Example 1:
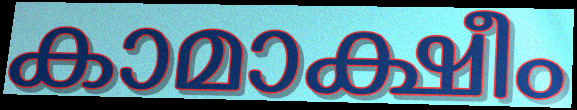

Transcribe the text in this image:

കാമാക്ഷീം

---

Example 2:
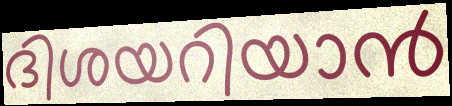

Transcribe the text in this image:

ദിശയറിയാൻ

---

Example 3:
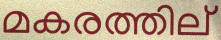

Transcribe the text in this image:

മകരത്തില്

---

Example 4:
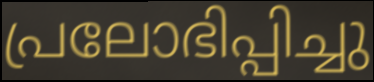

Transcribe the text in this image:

പ്രലോഭിപ്പിച്ചു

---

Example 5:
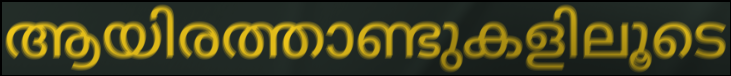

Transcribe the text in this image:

ആയിരത്താണ്ടുകളിലൂടെ